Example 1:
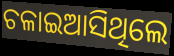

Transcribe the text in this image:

ଚଳାଇଆସିଥିଲେ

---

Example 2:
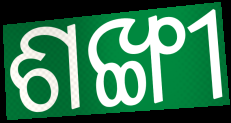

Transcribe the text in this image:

ଶଙ୍ଖୀ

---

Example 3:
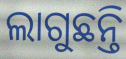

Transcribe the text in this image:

ଲାଗୁଛନ୍ତି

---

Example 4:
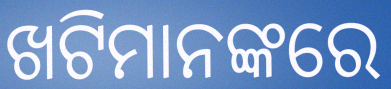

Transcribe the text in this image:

ଖଟିମାନଙ୍କରେ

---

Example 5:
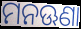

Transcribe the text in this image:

ମନଊଣା